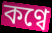
কণ্বে